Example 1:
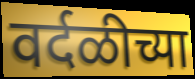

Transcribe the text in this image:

वर्दळीच्या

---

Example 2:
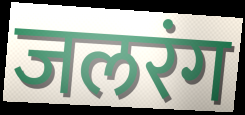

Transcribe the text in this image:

जलरंग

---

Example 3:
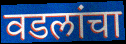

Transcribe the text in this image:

वडलांचा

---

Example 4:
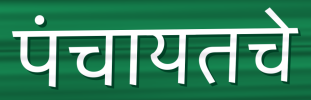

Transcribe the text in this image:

पंचायतचे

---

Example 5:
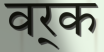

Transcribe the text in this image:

वर्क